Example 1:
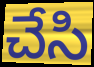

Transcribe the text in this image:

చేసి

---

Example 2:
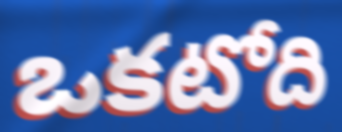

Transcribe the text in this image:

ఒకటోది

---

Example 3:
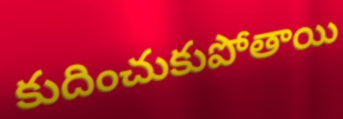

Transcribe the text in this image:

కుదించుకుపోతాయి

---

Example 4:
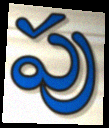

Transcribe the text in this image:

పు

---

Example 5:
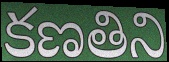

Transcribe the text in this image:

కణతిని